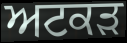
ਅਟਕੜ